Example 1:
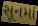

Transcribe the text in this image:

સૂનમાં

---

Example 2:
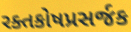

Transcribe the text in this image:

રક્તકોષપ્રસર્જક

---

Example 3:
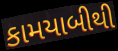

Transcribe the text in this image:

કામયાબીથી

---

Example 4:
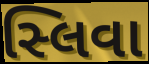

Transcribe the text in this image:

સ્લિવા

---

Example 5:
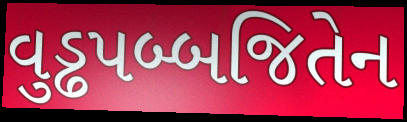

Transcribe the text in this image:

વુડ્ઢપબ્બજિતેન